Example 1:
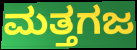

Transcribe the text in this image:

ಮತ್ತಗಜ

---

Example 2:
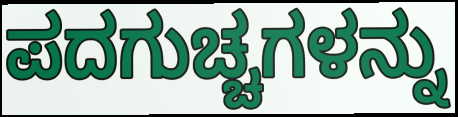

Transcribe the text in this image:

ಪದಗುಚ್ಚಗಳನ್ನು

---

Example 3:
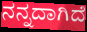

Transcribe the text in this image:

ನನ್ನದಾಗಿದೆ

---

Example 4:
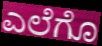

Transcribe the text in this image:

ಎಲೆಗೊ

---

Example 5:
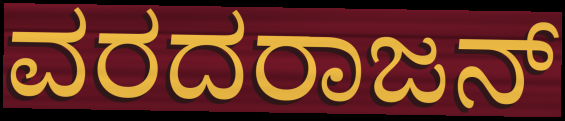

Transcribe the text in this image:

ವರದರಾಜನ್